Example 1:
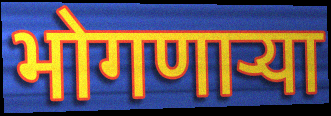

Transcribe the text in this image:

भोगणाऱ्या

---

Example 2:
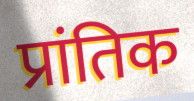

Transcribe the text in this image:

प्रांतिक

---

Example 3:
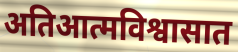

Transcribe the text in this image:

अतिआत्मविश्वासात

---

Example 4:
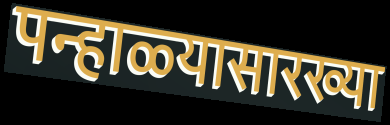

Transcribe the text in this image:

पन्हाळ्यासारख्या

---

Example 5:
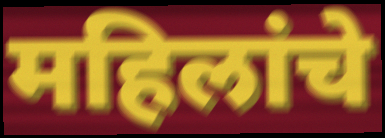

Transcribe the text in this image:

महिलांचे